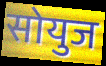
सोयुज